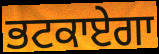
ਭਟਕਾਏਗਾ